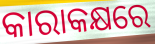
କାରାକକ୍ଷରେ